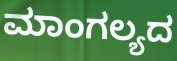
ಮಾಂಗಲ್ಯದ